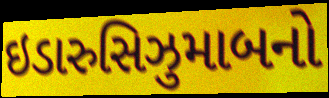
ઇડારુસિઝુમાબનો